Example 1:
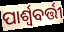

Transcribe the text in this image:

ପାର୍ଶ୍ୱବର୍ତ୍ତୀ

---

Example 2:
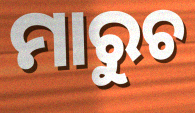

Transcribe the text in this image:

ମାରୁଚ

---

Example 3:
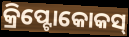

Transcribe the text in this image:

କ୍ରିପ୍ଟୋକୋକସ୍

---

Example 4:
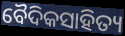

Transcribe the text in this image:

ବୈଦିକସାହିତ୍ୟ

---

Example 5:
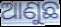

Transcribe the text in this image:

ଆଣୁଛ